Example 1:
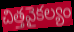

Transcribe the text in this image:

చిత్తవైకల్యం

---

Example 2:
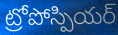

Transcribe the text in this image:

ట్రోపోస్పియర్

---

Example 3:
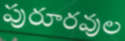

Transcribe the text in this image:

పురూరవుల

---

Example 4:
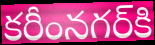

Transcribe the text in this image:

కరీంనగర్‌కి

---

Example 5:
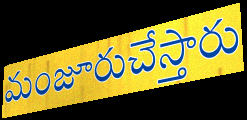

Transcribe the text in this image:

మంజూరుచేస్తారు